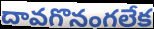
దావగొనంగలేక